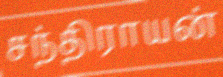
சந்திராயன்